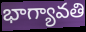
భాగ్యావతి